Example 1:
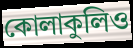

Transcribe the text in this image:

কোলাকুলিও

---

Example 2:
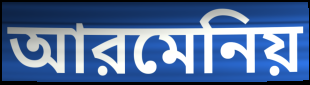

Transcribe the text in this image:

আরমেনিয়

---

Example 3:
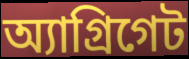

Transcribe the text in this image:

অ্যাগ্রিগেট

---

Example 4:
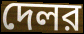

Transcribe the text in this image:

দেলর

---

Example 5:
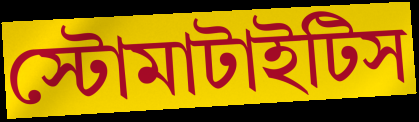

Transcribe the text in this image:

স্টোমাটাইটিস